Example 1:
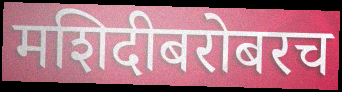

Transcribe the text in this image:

मशिदीबरोबरच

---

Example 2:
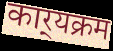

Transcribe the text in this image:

कार्यक्रम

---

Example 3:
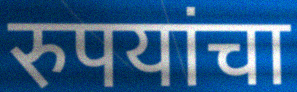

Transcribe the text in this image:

रुपयांचा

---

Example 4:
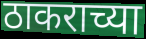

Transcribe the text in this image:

ठाकराच्या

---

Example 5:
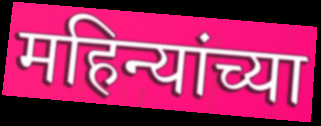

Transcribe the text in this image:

महिन्यांच्या